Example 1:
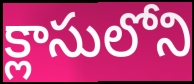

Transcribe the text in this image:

క్లాసులోని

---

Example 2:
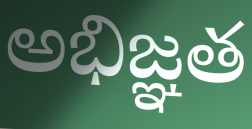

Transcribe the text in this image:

అభిజ్ఞత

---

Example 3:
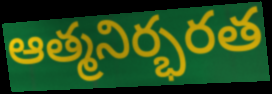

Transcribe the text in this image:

ఆత్మనిర్భరత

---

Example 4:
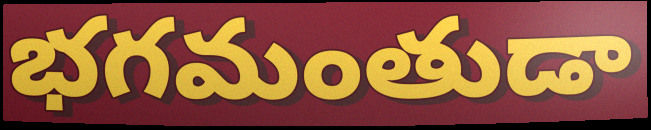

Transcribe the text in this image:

భగమంతుడా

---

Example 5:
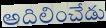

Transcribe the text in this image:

అదిలించేడు